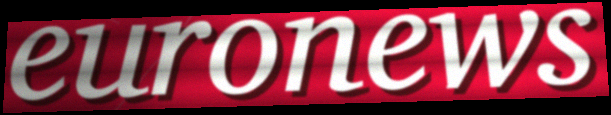
euronews